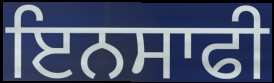
ਇਨਸਾਫੀ